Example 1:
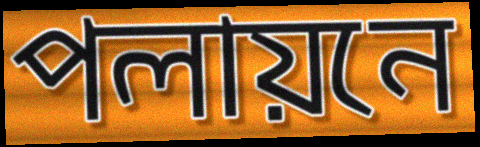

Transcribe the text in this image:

পলায়নে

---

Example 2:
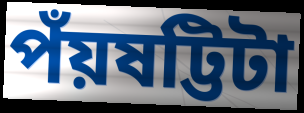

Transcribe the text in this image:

পঁয়ষট্টিটা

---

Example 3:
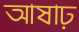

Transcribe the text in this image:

আষাঢ়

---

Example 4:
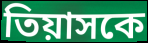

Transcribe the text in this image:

তিয়াসকে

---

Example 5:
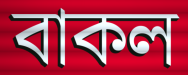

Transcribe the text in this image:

বাকল